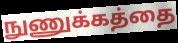
நுணுக்கத்தை